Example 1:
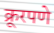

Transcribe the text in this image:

क्रूरपणे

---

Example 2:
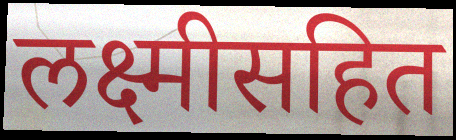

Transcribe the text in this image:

लक्ष्मीसहित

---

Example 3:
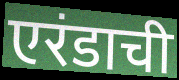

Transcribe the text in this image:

एरंडाची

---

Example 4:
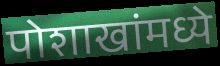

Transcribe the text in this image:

पोशाखांमध्ये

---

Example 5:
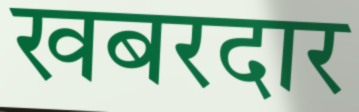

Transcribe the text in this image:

खबरदार